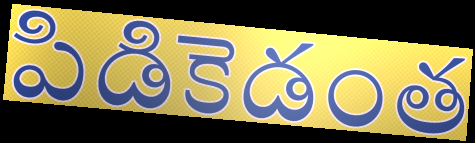
పిడికెడంత